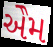
એેમ